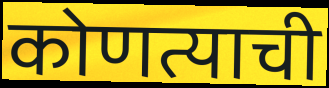
कोणत्याची